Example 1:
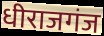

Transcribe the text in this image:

धीराजगंज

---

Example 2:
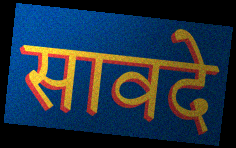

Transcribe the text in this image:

सावदे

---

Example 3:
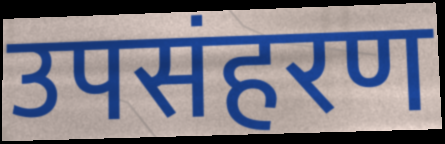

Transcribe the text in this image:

उपसंहरण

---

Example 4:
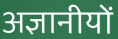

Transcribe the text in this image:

अज्ञानीयों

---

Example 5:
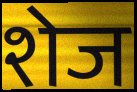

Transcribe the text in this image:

शेज